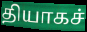
தியாகச்